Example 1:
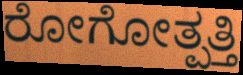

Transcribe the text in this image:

ರೋಗೋತ್ಪತ್ತಿ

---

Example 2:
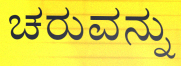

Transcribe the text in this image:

ಚರುವನ್ನು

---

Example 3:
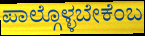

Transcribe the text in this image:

ಪಾಲ್ಗೊಳ್ಳಬೇಕೆಂಬ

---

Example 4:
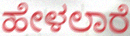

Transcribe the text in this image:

ಹೇಳಲಾರೆ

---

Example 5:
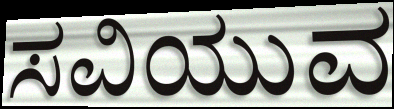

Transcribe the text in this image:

ಸವಿಯುವ